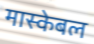
मास्केबल